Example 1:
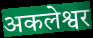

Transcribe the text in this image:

अकलेश्वर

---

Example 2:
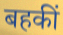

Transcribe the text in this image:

बहकीं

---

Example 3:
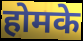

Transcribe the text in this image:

होमके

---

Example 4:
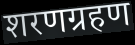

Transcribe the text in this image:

शरणग्रहण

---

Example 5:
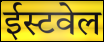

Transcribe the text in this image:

ईस्टवेल